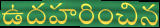
ఉదహరించిన